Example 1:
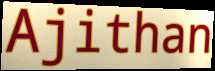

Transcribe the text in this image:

Ajithan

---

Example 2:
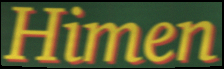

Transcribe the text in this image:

Himen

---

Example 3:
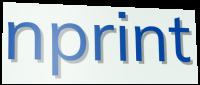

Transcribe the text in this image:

nprint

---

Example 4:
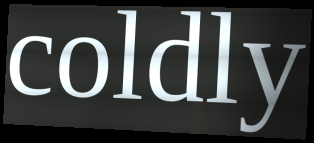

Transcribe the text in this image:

coldly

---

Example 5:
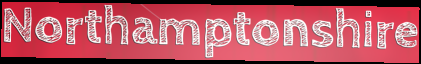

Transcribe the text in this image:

Northamptonshire